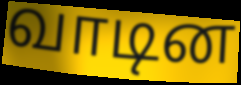
வாடின